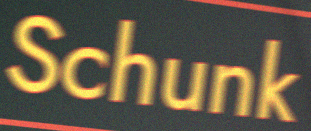
Schunk